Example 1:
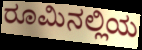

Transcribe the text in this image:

ರೂಮಿನಲ್ಲಿಯ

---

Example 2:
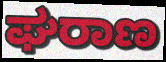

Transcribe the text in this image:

ಘರಾಣ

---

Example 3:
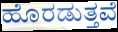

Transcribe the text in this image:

ಹೊರಡುತ್ತವೆ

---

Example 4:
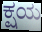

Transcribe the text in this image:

ಕ್ಷಯ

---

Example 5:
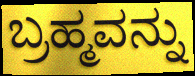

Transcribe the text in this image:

ಬ್ರಹ್ಮವನ್ನು